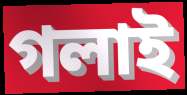
গলাই